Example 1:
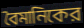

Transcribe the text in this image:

বৈমানিকের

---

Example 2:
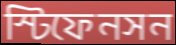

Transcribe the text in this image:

স্টিফেনসন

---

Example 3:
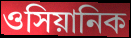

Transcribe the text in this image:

ওসিয়ানিক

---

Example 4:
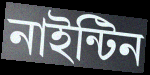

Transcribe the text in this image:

নাইন্টিন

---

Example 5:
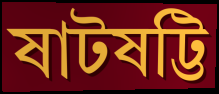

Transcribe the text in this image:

ষাটষট্টি